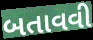
બતાવવી